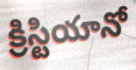
క్రిస్టియానో